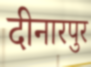
दीनारपुर